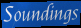
Soundings